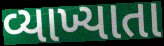
વ્યાખ્યાતા